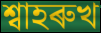
শ্বাহৰুখ